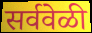
सर्ववेळी